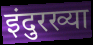
इंदुरख्या